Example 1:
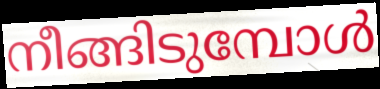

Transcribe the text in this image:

നീങ്ങിടുമ്പോൾ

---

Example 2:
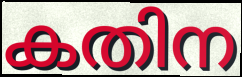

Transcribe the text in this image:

കതിന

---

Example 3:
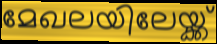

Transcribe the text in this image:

മേഖലയിലേയ്ക്ക്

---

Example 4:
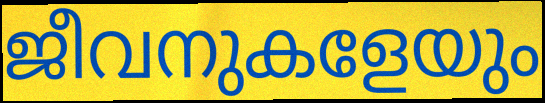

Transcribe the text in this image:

ജീവനുകളേയും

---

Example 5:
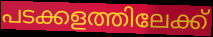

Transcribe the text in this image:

പടക്കളത്തിലേക്ക്